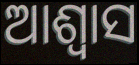
ଆଶ୍ୱାସ